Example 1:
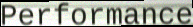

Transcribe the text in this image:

Performance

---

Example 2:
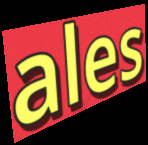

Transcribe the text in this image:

ales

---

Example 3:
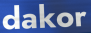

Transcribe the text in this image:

dakor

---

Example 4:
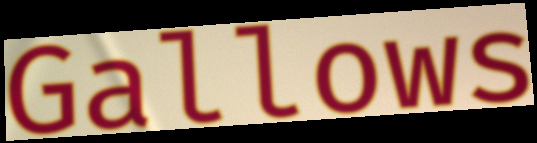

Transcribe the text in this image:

Gallows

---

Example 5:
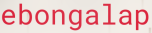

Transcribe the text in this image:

ebongalap